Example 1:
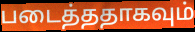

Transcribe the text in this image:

படைத்ததாகவும்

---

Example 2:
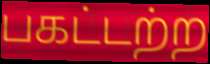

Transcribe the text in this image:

பகட்டற்ற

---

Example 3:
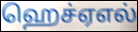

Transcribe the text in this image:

ஹெச்ஏஎல்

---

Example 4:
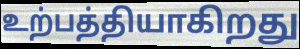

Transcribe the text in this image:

உற்பத்தியாகிறது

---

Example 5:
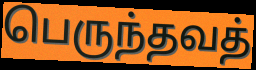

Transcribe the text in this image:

பெருந்தவத்